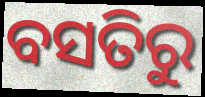
ବସତିରୁ